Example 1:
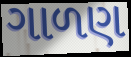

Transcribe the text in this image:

ગાળણ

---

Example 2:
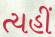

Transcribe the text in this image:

ત્યહીં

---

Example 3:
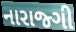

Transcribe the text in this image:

નારાજ્ગી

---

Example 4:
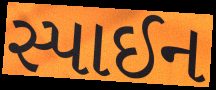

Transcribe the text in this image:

સ્પાઈન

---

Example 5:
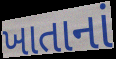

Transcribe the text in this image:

ખાતાનાં